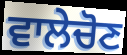
ਵਾਲੇਚੋਣ